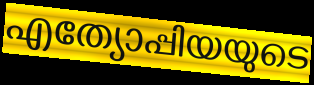
എത്യോപ്പിയയുടെ